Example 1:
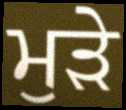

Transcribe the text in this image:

ਮੁੜੇ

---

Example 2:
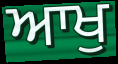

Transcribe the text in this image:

ਆਖੁ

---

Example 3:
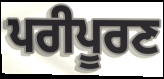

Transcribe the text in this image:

ਪਰੀਪੂਰਣ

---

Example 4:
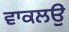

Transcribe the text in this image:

ਵਾਕਲਉ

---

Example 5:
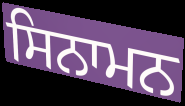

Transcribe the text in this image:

ਸਿਨਾਮਨ